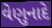
વેણુનાદે